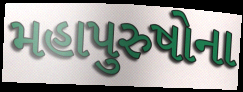
મહાપુરુષોના